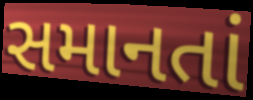
સમાનતાં